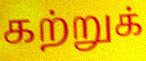
கற்றுக்